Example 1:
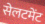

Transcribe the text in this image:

सेलटमेंट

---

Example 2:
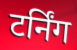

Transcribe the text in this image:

टर्निंग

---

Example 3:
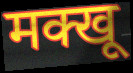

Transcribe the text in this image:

मक्खू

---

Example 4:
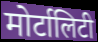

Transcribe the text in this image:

मोर्टालिटी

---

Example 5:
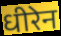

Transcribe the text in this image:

धीरेन